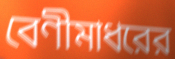
বেণীমাধরের